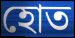
হোত